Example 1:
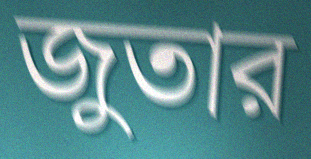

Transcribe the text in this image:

জুতার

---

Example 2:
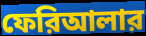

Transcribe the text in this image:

ফেরিআলার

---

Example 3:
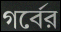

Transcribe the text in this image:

গর্বের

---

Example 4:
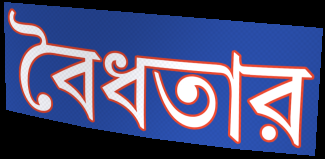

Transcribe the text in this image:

বৈধতার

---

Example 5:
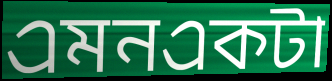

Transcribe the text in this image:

এমনএকটা